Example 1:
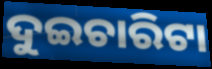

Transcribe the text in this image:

ଦୁଇଚାରିଟା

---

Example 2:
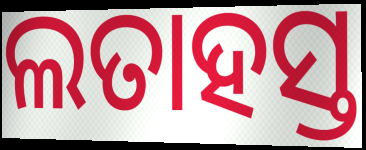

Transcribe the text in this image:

ଲତାହସ୍ତ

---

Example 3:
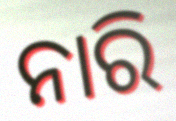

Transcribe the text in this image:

ନାରି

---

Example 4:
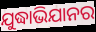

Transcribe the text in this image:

ଯୁଦ୍ଧାଭିଯାନର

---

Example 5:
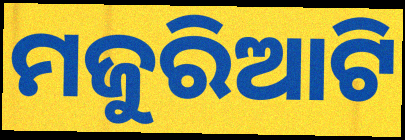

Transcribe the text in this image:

ମଜୁରିଆଟି